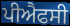
ਪੀਐਫਸੀ